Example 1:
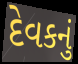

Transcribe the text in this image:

દેવકનું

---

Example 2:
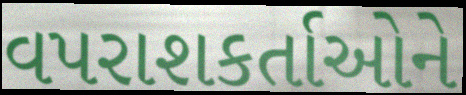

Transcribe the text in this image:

વપરાશકર્તાઓને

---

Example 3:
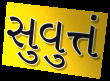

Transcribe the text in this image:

સુવુત્તં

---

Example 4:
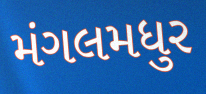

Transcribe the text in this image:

મંગલમધુર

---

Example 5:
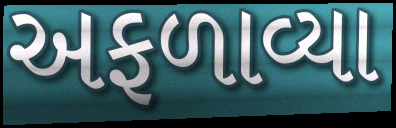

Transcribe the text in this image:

અફળાવ્યા